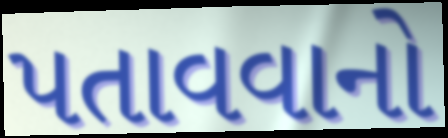
પતાવવાનો